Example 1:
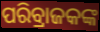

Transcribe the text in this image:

ପରିବ୍ରାଜକଙ୍କ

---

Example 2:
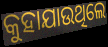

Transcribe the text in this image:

କୁହାଯାଉଥିଲେ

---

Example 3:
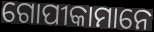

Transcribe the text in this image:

ଗୋପୀକାମାନେ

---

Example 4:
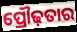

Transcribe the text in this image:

ପ୍ରୌଢ଼ତାର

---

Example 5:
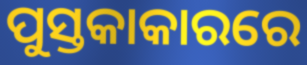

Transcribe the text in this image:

ପୁସ୍ତକାକାରରେ